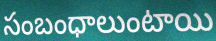
సంబంధాలుంటాయి